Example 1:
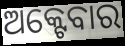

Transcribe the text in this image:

ଅକ୍ଟେବାର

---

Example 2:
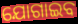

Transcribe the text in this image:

ଯୋଗାଇବ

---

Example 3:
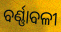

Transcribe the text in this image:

ବର୍ଣ୍ଣାବଳୀ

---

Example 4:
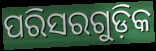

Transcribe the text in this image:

ପରିସରଗୁଡ଼ିକ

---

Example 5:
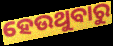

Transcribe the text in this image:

ହେଉଥୁବାରୁ